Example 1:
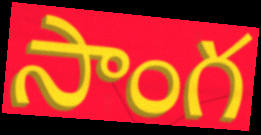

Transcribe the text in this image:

సాంగ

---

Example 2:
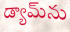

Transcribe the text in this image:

డ్యామ్‌ను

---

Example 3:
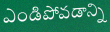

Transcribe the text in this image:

ఎండిపోవడాన్ని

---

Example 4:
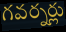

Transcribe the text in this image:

గవర్నర్లు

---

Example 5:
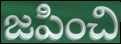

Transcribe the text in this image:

జపించి